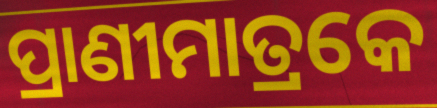
ପ୍ରାଣୀମାତ୍ରକେ